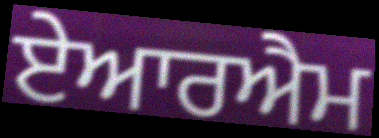
ਏਆਰਐਮ